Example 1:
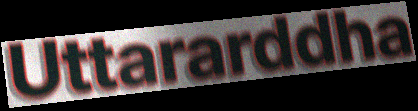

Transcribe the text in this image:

Uttararddha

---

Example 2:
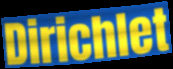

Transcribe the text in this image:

Dirichlet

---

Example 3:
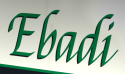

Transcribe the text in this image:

Ebadi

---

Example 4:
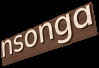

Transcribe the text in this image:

nsonga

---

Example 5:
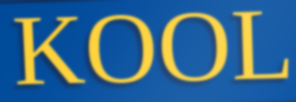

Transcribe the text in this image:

KOOL